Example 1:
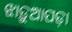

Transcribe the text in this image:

ଝାଡ଼ୁଆପଡ଼ା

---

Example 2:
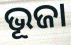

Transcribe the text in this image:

ଭୂଜା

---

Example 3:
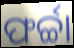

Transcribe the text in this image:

ଫର୍ଚ୍ଚା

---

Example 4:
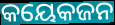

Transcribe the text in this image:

କୟେକଜନ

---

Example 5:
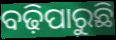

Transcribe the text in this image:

ବଢ଼ିପାରୁଛି